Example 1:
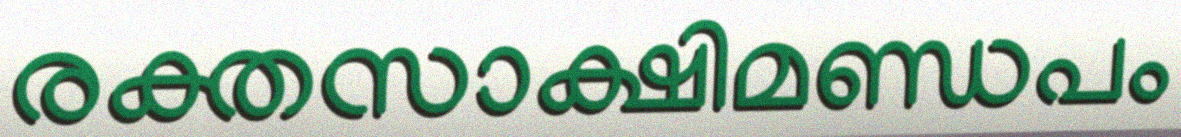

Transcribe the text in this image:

രക്തസാക്ഷിമണ്ഡപം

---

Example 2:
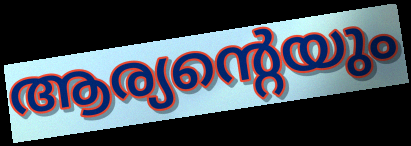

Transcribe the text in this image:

ആര്യന്റെയും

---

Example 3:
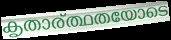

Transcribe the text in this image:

കൃതാര്ത്ഥതയോടെ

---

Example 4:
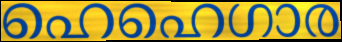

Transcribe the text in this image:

ഹെഹെഗാര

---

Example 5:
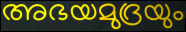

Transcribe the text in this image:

അഭയമുദ്രയും